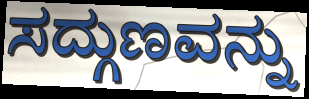
ಸದ್ಗುಣವನ್ನು